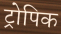
ट्रोपिक